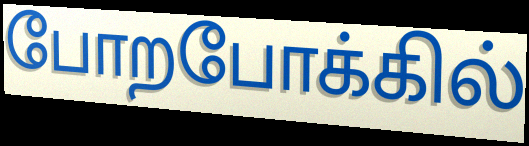
போறபோக்கில்